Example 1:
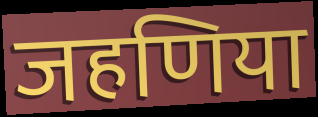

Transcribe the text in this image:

जहणिया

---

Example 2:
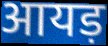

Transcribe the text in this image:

आयड़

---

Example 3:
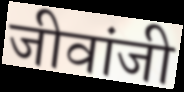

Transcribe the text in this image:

जीवांजी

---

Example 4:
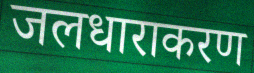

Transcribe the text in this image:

जलधाराकरण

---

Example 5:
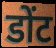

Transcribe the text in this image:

डोंट